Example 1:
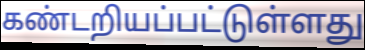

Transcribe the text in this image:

கண்டறியப்பட்டுள்ளது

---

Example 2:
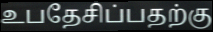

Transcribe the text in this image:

உபதேசிப்பதற்கு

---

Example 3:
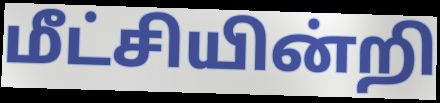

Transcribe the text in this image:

மீட்சியின்றி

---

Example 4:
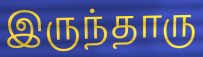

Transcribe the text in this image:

இருந்தாரு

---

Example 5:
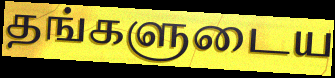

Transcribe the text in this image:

தங்களுடைய